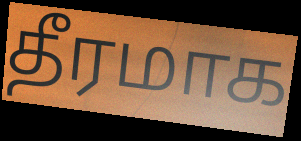
தீரமாக